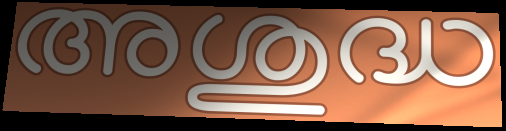
അശുദ്ധ